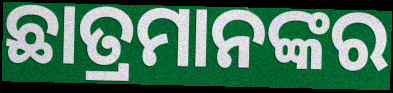
ଛାତ୍ରମାନଙ୍କର